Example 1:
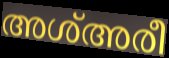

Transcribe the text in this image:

അശ്അരീ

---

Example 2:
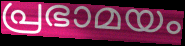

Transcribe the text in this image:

പ്രഭാമയം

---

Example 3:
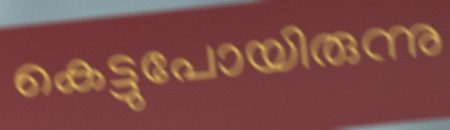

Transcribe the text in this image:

കെട്ടുപോയിരുന്നു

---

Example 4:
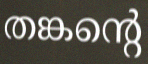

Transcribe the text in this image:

തങ്കന്റെ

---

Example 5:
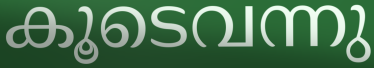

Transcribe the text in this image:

കൂടെവന്നു